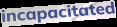
incapacitated